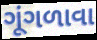
ગૂંગળાવા